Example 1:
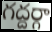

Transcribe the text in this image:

గద్దర్గా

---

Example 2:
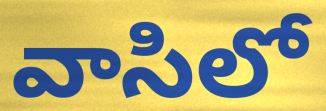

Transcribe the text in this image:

వాసిలో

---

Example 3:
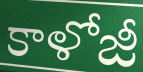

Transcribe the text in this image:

కాళోజీ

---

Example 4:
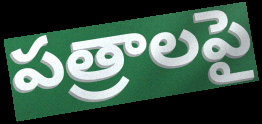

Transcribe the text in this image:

పత్రాలపై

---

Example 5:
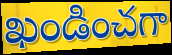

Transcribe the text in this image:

ఖండించగా